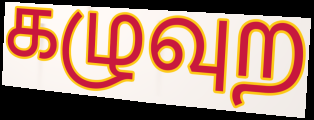
கழுவுற